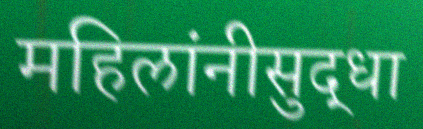
महिलांनीसुद्धा